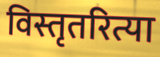
विस्तृतरित्या